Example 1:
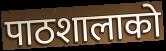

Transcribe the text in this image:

पाठशालाको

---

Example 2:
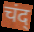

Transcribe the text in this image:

चंद्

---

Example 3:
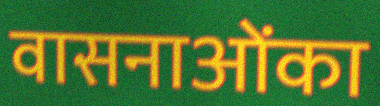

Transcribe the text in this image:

वासनाओंका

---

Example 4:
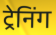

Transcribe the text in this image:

ट्रेनिंग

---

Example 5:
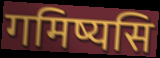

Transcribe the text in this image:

गमिष्यसि